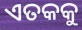
ଏତକକୁ